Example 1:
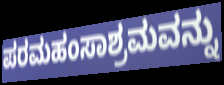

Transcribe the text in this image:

ಪರಮಹಂಸಾಶ್ರಮವನ್ನು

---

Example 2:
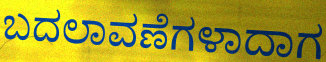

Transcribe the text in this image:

ಬದಲಾವಣೆಗಳಾದಾಗ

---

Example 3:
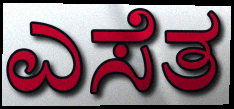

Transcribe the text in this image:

ಎಸೆತ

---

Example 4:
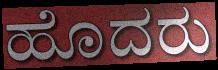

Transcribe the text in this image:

ಹೊದರು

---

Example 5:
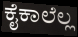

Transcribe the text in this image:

ಕೈಕಾಲೆಲ್ಲ